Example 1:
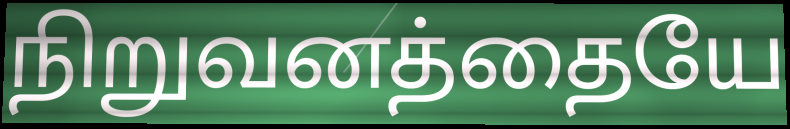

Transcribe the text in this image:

நிறுவனத்தையே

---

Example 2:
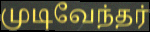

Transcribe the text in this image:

முடிவேந்தர்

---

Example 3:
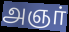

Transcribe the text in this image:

அஞர்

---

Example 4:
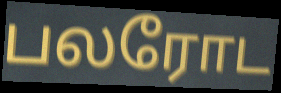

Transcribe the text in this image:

பலரோட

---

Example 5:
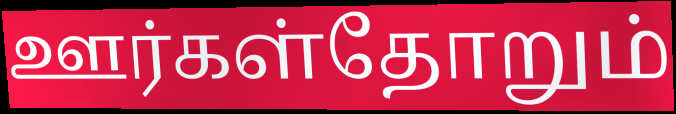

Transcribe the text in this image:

ஊர்கள்தோறும்